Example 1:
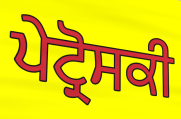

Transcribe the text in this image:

ਪੇਟ੍ਰੋਸਕੀ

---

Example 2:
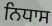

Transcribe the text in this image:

ਨਿਧਾਸ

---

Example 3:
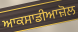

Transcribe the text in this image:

ਆਕਸਾਡੀਆਜ਼ੋਲ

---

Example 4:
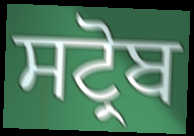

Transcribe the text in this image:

ਸਟ੍ਰੋਬ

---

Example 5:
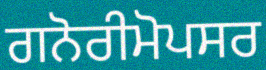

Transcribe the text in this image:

ਗਨੋਰੀਮੋਪਸਰ